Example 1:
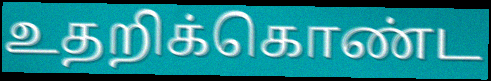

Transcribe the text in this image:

உதறிக்கொண்ட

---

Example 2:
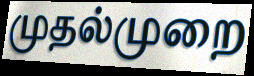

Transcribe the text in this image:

முதல்முறை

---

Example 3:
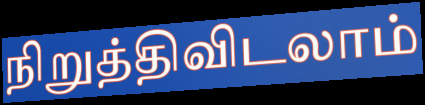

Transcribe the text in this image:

நிறுத்திவிடலாம்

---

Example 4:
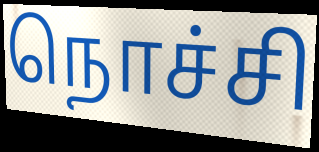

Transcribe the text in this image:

நொச்சி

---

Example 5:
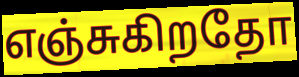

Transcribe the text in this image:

எஞ்சுகிறதோ